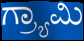
ಗ್ರ್ಯಾಮಿ